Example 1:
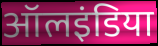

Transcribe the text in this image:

ऑलइंडिया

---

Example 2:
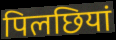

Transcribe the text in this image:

पिलछियां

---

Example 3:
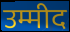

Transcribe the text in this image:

उम्‍मीद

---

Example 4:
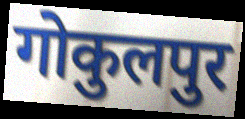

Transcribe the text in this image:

गोकुलपुर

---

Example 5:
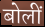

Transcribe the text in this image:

बोलीं